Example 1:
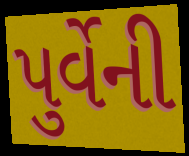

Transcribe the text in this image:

પુર્વેની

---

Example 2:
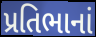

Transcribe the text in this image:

પ્રતિભાનાં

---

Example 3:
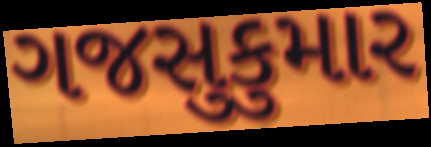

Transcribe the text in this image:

ગજસુકુમાર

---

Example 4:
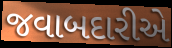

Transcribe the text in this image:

જવાબદારીએ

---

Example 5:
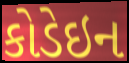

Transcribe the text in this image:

કોડેઇન